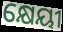
କ୍ଷେୟୀ